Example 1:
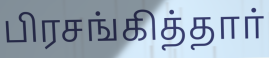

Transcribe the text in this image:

பிரசங்கித்தார்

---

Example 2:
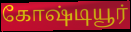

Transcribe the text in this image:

கோஷ்டியூர்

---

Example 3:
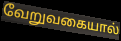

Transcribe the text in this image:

வேறுவகையால்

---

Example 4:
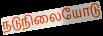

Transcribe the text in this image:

நடுநிலையோடு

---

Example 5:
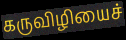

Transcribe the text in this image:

கருவிழியைச்